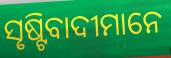
ସୃଷ୍ଟିବାଦୀମାନେ